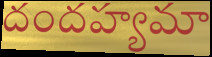
దందహ్యమా